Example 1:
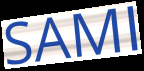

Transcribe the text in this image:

SAMI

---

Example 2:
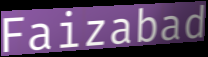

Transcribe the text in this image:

Faizabad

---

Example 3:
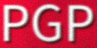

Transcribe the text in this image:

PGP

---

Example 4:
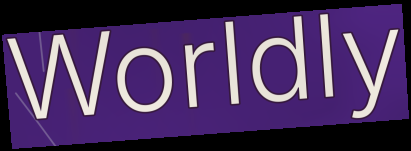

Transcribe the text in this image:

Worldly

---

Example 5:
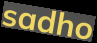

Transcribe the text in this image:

sadho